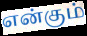
என்கும்